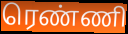
ரெண்ணி